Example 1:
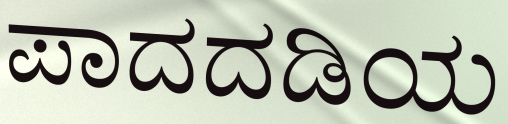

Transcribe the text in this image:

ಪಾದದಡಿಯ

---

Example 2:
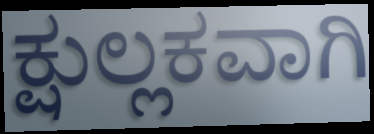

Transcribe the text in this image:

ಕ್ಷುಲ್ಲಕವಾಗಿ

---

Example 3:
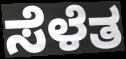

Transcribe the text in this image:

ಸೆಳೆತ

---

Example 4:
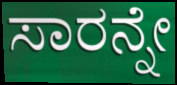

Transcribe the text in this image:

ಸಾರನ್ನೇ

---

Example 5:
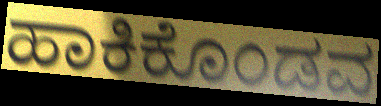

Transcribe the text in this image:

ಹಾಕಿಕೊಂಡವ